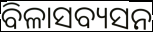
ବିଳାସବ୍ୟସନ